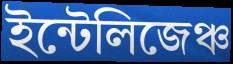
ইন্টেলিজেঞ্চ